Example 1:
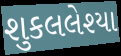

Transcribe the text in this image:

શુકલલેશ્યા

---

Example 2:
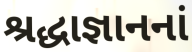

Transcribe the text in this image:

શ્રદ્ધાજ્ઞાનનાં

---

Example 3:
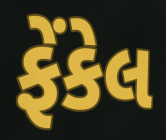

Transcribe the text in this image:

ફેંકેલ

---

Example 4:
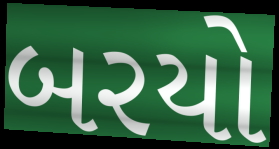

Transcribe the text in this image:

બરયો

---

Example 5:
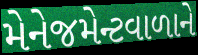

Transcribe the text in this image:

મેનેજમેન્ટવાળાને